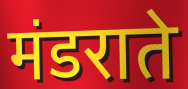
मंडराते